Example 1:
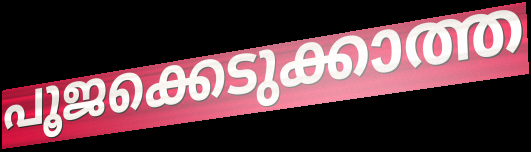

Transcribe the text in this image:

പൂജക്കെടുക്കാത്ത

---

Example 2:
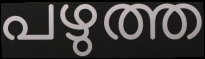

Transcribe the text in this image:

പഴുത്ത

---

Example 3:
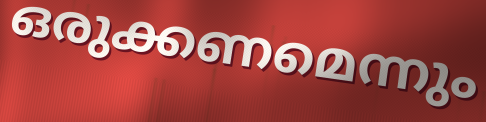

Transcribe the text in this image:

ഒരുക്കണമെന്നും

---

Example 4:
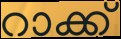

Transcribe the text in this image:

റാക്ക്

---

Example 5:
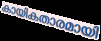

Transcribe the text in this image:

കായികതാരമായി